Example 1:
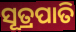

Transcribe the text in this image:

ସୂତ୍ରପାତି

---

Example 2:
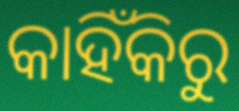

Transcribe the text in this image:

କାହିଁକିରୁ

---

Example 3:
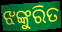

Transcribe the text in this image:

ଝଙ୍କୁରିତ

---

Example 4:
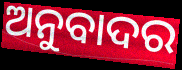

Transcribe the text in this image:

ଅନୁବାଦର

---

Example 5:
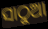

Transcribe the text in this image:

ସାଠୁଆ